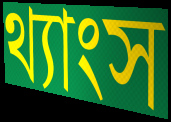
থ্যাংস